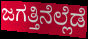
ಜಗತ್ತಿನೆಲ್ಲೆಡೆ